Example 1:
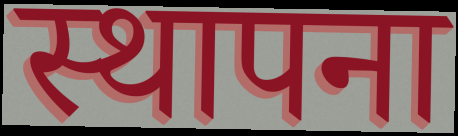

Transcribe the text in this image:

स्थापना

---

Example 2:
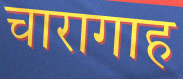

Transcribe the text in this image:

चारागाह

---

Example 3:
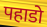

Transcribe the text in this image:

पहाडो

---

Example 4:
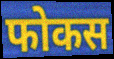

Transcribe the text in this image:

फोकस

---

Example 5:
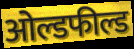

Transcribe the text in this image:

ओल्डफील्ड